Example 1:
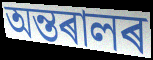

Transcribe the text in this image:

অন্তৰালৰ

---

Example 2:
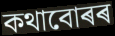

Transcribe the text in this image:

কথাবোৰৰ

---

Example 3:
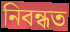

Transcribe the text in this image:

নিবন্ধত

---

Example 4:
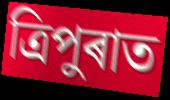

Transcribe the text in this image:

ত্ৰিপুৰাত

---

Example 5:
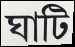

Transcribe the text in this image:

ঘাটি